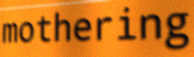
mothering